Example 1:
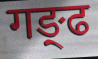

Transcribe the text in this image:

गङ्ढ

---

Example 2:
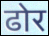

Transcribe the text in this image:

ढोर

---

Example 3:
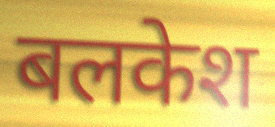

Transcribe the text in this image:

बलकेश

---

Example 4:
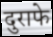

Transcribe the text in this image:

दुराफे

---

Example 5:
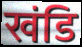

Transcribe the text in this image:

खंडि